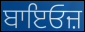
ਬਾਇਓਜ਼